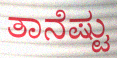
ತಾನೆಷ್ಟು